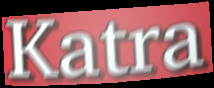
Katra